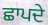
ਛਾਪਦੇ